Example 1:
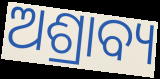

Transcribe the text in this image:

ଅଶ୍ରାବ୍ୟ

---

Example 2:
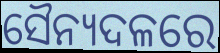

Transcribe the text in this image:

ସୈନ୍ୟଦଳରେ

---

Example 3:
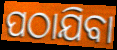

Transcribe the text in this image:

ପଠାଯିବା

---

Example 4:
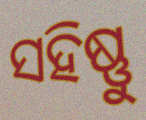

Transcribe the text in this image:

ସହିଷ୍ଣୁ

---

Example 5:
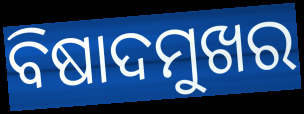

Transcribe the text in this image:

ବିଷାଦମୁଖର